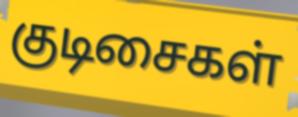
குடிசைகள்